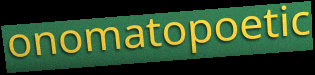
onomatopoetic